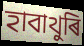
হাবাথুৰি